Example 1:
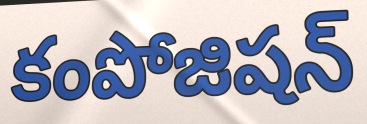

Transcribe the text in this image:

కంపోజిషన్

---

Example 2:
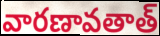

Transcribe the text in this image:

వారణావతాత్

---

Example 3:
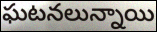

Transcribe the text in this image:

ఘటనలున్నాయి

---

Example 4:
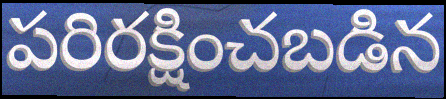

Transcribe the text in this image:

పరిరక్షించబడిన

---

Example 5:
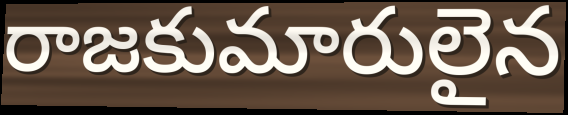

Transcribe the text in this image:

రాజకుమారులైన